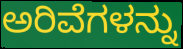
ಅರಿವೆಗಳನ್ನು